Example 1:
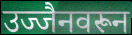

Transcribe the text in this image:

उज्जैनवरून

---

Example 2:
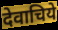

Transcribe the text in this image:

देवाचिये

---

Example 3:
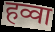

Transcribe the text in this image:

हव्वा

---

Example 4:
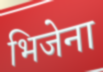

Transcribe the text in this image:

भिजेना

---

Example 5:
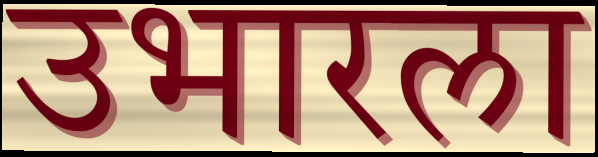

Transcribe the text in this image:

उभारला